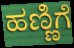
ಹಣ್ಣಿಗೆ